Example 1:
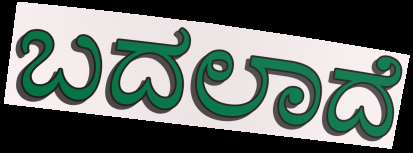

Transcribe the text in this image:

ಬದಲಾದೆ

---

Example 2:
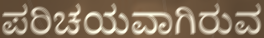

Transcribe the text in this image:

ಪರಿಚಯವಾಗಿರುವ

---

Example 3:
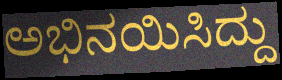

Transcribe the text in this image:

ಅಭಿನಯಿಸಿದ್ದು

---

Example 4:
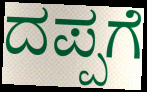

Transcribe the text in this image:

ದಪ್ಪಗೆ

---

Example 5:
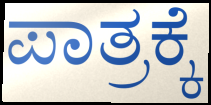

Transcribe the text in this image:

ಪಾತ್ರಕ್ಕೆ